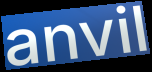
anvil